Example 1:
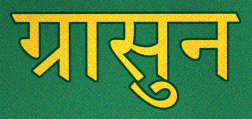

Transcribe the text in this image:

ग्रासुन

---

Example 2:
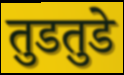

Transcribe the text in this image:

तुडतुडे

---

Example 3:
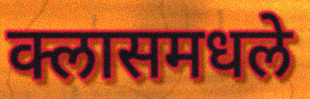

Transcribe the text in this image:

क्लासमधले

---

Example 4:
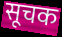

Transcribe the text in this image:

सूचक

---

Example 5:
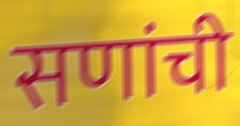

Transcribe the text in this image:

सणांची